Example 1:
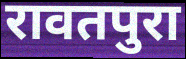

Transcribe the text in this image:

रावतपुरा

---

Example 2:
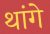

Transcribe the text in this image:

थांगे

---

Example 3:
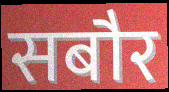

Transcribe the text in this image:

सबौर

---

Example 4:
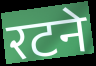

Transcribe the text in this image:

रटने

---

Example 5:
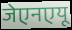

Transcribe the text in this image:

जेएनएयू